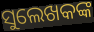
ସୁଲେଖକଙ୍କ